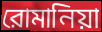
রোমানিয়া